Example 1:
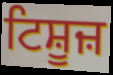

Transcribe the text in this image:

ਟਿਸ਼ੂਜ਼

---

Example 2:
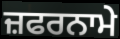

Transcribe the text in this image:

ਜ਼ਫਰਨਾਮੇ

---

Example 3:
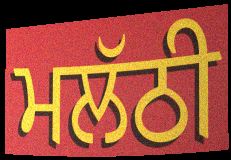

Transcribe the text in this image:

ਮਲੱਠੀ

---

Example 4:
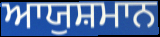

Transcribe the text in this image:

ਆਯੁਸ਼ਮਾਨ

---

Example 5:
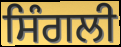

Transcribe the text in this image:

ਸਿੰਗਲੀ